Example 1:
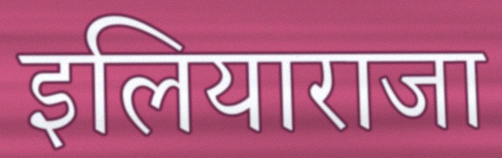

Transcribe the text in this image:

इलियाराजा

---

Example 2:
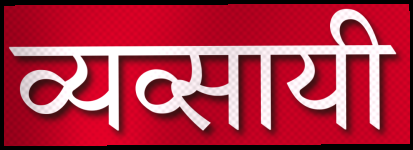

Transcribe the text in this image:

व्यव्सायी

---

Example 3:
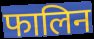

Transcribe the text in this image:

फालिन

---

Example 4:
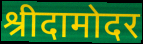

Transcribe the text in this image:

श्रीदामोदर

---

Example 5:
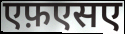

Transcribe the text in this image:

एफ़एसए